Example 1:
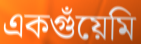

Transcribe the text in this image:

একগুঁয়েমি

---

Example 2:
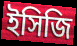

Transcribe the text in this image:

ইসিজি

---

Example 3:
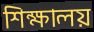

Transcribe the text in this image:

শিক্ষালয়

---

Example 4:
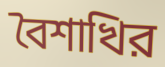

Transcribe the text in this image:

বৈশাখির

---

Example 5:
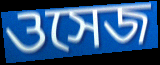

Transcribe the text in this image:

ওসেজ